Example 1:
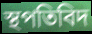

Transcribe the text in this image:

স্থপতিবিদ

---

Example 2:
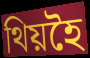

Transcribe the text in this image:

থিয়হৈ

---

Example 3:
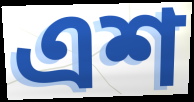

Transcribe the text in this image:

এশ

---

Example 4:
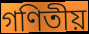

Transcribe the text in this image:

গণিতীয়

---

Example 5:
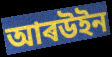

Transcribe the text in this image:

আৰউইন